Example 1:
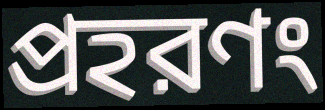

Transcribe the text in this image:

প্রহরণং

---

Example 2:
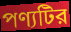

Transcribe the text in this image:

পণ্যটির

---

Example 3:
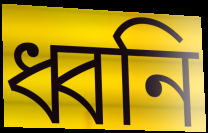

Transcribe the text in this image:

ধ্বনি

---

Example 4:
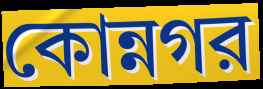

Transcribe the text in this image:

কোন্নগর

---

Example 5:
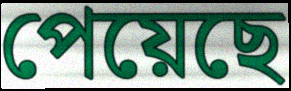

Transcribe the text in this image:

পেয়েছে